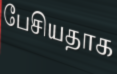
பேசியதாக